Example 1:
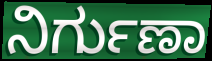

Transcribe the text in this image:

ನಿರ್ಗುಣಾ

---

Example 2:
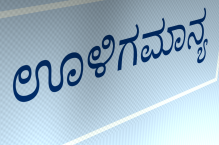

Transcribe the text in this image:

ಊಳಿಗಮಾನ್ಯ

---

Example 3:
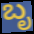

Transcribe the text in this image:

ಬೃ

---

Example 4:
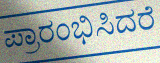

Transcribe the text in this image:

ಪ್ರಾರಂಭಿಸಿದರೆ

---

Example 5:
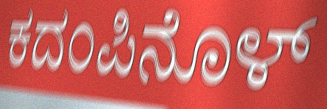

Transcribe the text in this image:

ಕದಂಪಿನೊಳ್